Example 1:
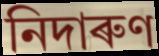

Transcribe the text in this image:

নিদাৰুণ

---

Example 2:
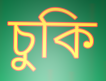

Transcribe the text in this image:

চুকি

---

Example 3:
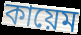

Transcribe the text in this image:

কায়েম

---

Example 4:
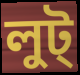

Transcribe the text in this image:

লুট্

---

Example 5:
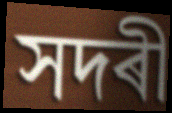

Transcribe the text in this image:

সদৰী